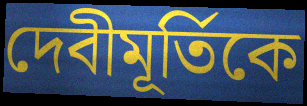
দেবীমূর্তিকে